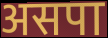
असपा